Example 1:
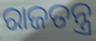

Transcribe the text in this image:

ରାଜତନ୍ତ୍ର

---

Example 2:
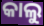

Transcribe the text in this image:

କାଲୁ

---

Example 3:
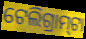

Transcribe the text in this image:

ଟେଲିଗ୍ରାମ୍‍ଟା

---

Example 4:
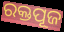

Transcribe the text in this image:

ରକ୍ତପୂଜ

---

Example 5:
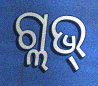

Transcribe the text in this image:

ଗ୍ଲଭ୍